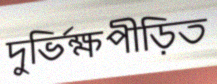
দুর্ভিক্ষপীড়িত